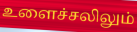
உளைச்சலிலும்